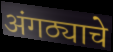
अंगठ्याचे